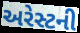
અરેસ્ટની